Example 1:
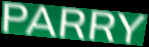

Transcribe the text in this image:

PARRY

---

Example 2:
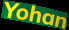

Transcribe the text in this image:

Yohan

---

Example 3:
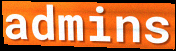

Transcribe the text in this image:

admins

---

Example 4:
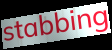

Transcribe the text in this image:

stabbing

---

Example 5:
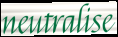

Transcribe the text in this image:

neutralise